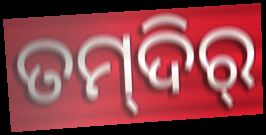
ତମ୍‍ଦିର୍